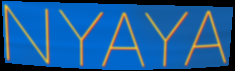
NYAYA